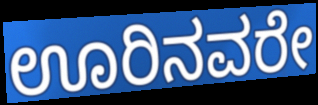
ಊರಿನವರೇ